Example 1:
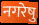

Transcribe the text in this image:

नगरेषु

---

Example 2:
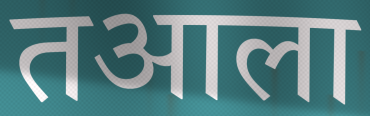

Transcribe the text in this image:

तआला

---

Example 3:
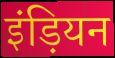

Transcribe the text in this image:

इंड़ियन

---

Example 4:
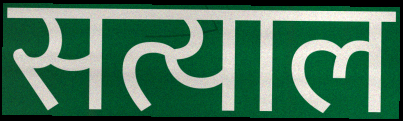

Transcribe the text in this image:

सत्याल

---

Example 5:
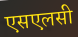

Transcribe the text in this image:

एसएलसी